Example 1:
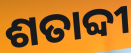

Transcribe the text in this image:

ଶତାବ୍ଦୀ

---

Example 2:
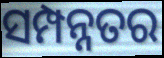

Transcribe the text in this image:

ସମ୍ପନ୍ନତର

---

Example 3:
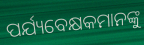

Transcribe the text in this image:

ପର୍ଯ୍ୟବେକ୍ଷକମାନଙ୍କୁ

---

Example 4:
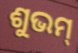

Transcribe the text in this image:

ଶୁଭମ୍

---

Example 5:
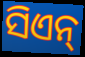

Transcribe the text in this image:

ସିଏନ୍